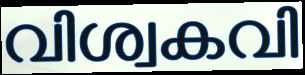
വിശ്വകവി